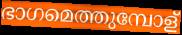
ഭാഗമെത്തുമ്പോള്